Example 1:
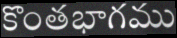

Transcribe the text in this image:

కొంతభాగము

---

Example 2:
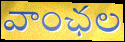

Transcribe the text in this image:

వాంఛల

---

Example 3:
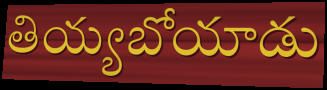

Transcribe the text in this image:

తియ్యబోయాడు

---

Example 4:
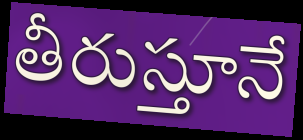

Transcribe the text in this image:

తీరుస్తూనే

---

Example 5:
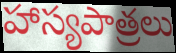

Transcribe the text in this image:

హాస్యపాత్రలు